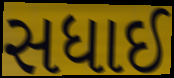
સધાઈ